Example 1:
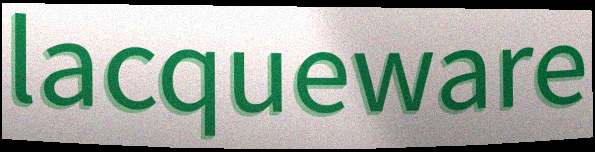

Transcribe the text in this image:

lacqueware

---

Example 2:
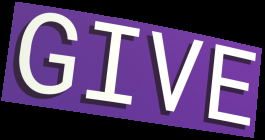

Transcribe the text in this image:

GIVE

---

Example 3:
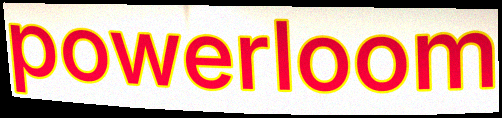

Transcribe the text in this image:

powerloom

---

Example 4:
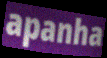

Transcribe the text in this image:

apanha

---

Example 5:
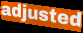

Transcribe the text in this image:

adjusted